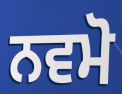
ਨਵਮੋ